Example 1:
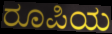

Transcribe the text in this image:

ರೂಪಿಯ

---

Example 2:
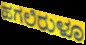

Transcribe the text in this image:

ಹಗಲಿರುಳೂ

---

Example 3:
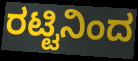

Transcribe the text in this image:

ರಟ್ಟಿನಿಂದ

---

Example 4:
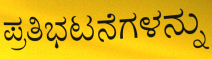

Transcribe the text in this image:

ಪ್ರತಿಭಟನೆಗಳನ್ನು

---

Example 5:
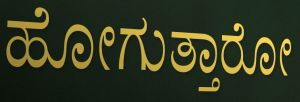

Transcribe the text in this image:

ಹೋಗುತ್ತಾರೋ